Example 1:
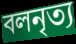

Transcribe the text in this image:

বলনৃত্য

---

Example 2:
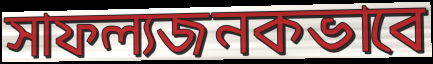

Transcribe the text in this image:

সাফল্যজনকভাবে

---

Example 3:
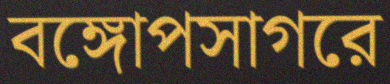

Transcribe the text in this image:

বঙ্গোপসাগরে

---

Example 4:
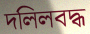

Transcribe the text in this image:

দলিলবদ্ধ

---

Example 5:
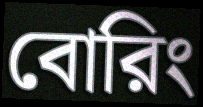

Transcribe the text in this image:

বোরিং